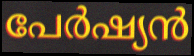
പേർഷ്യൻ